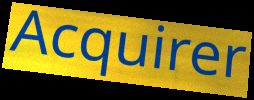
Acquirer